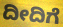
ದೀದಿಗೆ